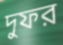
দুফর